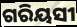
ଗରିୟସୀ